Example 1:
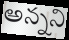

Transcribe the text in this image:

అన్నని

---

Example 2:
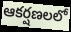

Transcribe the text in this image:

ఆకర్షణలలో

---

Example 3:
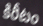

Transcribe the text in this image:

కిరీటం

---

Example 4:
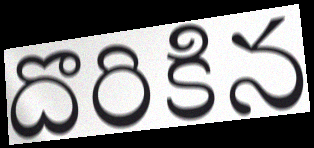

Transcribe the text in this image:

దొరికిన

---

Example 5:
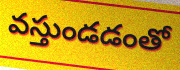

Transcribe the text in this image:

వస్తుండడంతో